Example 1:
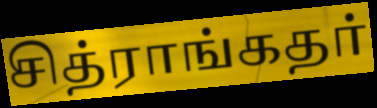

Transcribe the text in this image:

சித்ராங்கதர்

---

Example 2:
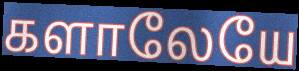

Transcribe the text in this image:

களாலேயே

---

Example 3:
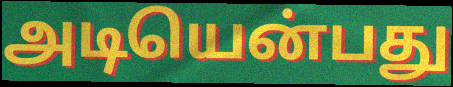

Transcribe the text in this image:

அடியென்பது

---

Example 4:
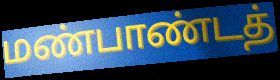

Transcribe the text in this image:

மண்பாண்டத்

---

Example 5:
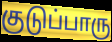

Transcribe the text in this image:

குடுப்பாரு